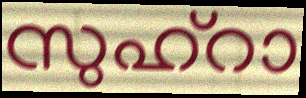
സുഹ്റാ